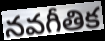
నవగీతిక